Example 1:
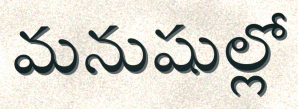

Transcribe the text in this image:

మనుషుల్లో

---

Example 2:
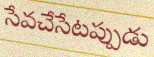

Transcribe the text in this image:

సేవచేసేటప్పుడు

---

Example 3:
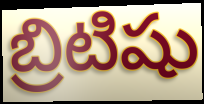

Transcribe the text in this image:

బ్రిటిషు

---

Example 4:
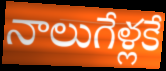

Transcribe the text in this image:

నాలుగేళ్లకే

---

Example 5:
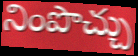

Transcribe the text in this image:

నింపొచ్చు